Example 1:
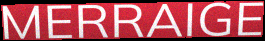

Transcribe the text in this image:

MERRAIGE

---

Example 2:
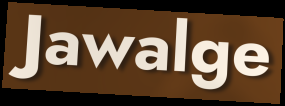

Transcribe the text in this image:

Jawalge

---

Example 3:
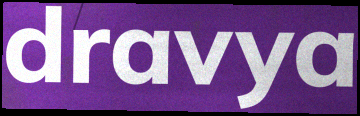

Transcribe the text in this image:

dravya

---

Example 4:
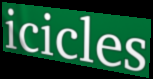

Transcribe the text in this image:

icicles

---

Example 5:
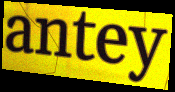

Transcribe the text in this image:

antey